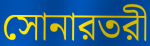
সোনারতরী